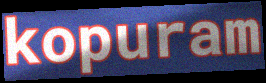
kopuram